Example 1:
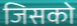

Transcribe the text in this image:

जिसको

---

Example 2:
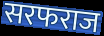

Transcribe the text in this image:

सरफराज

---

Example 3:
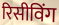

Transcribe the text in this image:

रिसीविंग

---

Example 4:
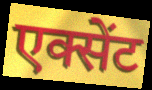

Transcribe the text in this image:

एक्सेंट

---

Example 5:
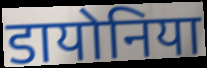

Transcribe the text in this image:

डायोनिया